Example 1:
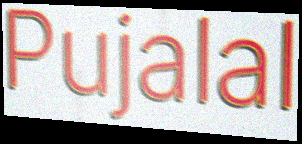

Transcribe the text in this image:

Pujalal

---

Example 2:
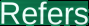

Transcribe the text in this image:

Refers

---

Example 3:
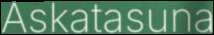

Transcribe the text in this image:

Askatasuna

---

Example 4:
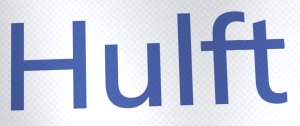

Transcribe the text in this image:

Hulft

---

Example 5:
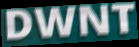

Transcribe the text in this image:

DWNT